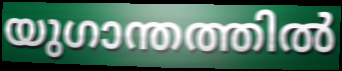
യുഗാന്തത്തിൽ